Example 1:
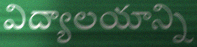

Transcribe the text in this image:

విద్యాలయాన్ని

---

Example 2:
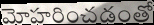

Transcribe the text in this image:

మోహరించడంతో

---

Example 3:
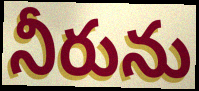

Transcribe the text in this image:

నీరును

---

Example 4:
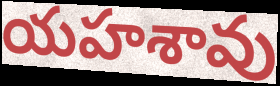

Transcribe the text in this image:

యహశావు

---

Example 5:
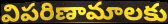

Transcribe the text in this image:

విపరిణామాలకు